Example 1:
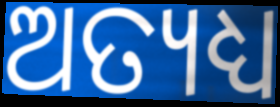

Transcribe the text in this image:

ଅତ୍ୟଧ୍ୟ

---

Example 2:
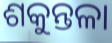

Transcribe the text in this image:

ଶକୁନ୍ତଳା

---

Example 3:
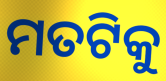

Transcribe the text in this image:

ମତଟିକୁ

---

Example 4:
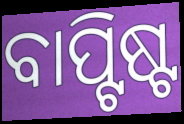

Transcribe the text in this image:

ବାପ୍ଟିଷ୍ଟ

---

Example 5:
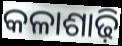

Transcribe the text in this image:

କଳାଶାଢ଼ି